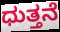
ಧುತ್ತನೆ